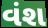
વંશ